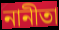
নানীতা